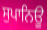
ਸੁਪਾਨਿਊ